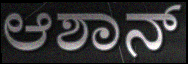
ಆಶಾನ್